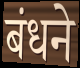
बंधने